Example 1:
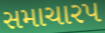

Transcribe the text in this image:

સમાચારપ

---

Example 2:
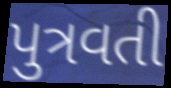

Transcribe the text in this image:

પુત્રવતી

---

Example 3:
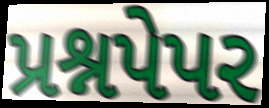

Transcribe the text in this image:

પ્રશ્નપેપર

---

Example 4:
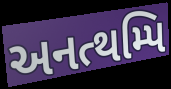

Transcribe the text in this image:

અનત્થમ્પિ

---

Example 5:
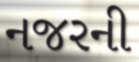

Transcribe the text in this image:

નજરની